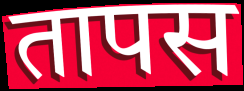
तापस